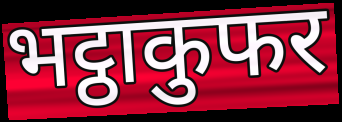
भट्ठाकुफर